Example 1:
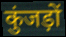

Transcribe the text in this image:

कुंजड़ों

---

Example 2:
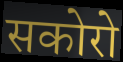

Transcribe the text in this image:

सकोरो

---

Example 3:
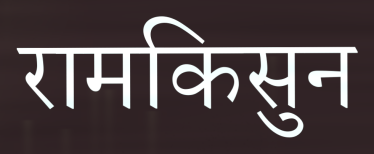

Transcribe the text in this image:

रामकिसुन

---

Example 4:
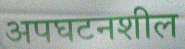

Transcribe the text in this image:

अपघटनशील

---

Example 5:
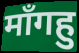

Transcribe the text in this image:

माँगहु